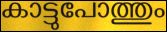
കാട്ടുപോത്തും